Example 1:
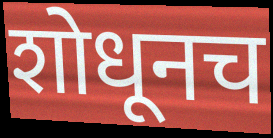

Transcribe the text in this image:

शोधूनच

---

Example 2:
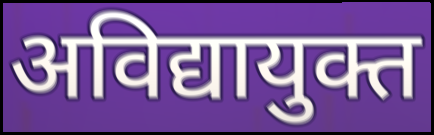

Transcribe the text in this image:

अविद्यायुक्त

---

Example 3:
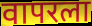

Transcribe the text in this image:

वापरला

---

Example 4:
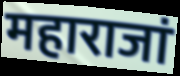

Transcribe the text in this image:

महाराजां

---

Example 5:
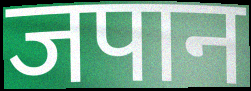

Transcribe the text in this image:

जपान